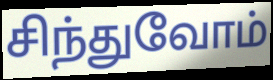
சிந்துவோம்